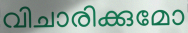
വിചാരിക്കുമോ